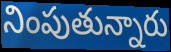
నింపుతున్నారు